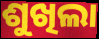
ଶୁଖିଲା